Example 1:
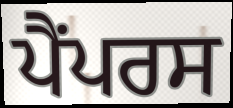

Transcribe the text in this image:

ਪੈਂਪਰਸ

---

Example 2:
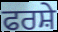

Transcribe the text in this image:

ਫਰਸ਼ੇ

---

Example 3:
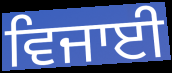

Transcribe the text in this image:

ਵਿਜਾਈ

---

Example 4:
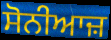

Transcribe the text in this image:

ਸੋਨੀਆਜ਼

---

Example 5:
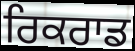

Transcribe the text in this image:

ਰਿਕਰਾਡ